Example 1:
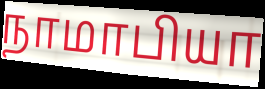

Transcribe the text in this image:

நாமாபியா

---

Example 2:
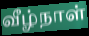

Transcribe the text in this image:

வீழ்நாள்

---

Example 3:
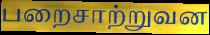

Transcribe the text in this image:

பறைசாற்றுவன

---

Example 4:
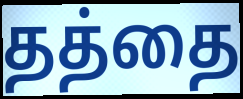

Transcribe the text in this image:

தத்தை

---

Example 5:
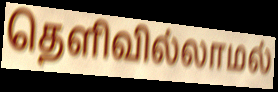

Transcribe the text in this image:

தெளிவில்லாமல்